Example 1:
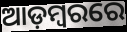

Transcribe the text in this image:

ଆଡ଼ମ୍ୱରରେ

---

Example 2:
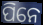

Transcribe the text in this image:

ପିନେ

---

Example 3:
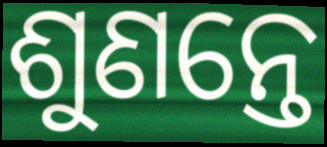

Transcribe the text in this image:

ଶୁଣନ୍ତେ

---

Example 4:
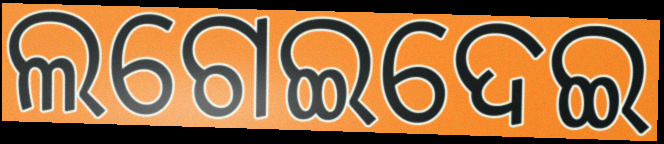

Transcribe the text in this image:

ଲଗେଇଦେଇ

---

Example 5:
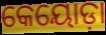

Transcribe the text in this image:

କେୟୋଡ଼ା